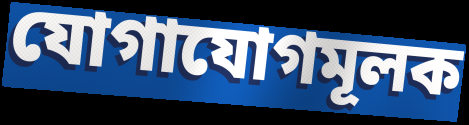
যোগাযোগমূলক